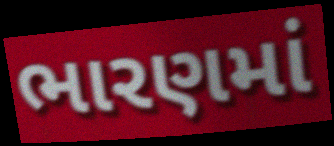
ભારણમાં